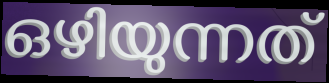
ഒഴിയുന്നത്